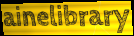
ainelibrary